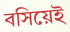
বসিয়েই